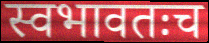
स्वभावतःच